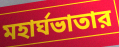
মহার্ঘভাতার